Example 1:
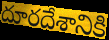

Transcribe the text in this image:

దూరదేశానికి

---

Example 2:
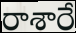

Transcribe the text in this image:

రాశారే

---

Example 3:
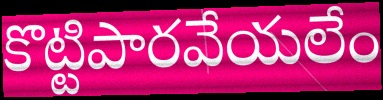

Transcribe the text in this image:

కొట్టిపారవేయలేం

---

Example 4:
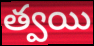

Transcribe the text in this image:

త్వయి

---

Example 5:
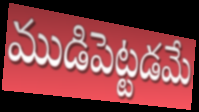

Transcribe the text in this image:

ముడిపెట్టడమే